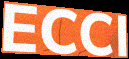
ECCI